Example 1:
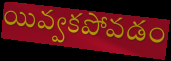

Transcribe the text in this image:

యివ్వకపోవడం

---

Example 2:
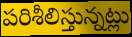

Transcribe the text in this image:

పరిశీలిస్తున్నట్లు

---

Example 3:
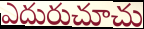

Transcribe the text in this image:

ఎదురుచూచు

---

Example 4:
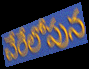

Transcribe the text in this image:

చేరేలోపున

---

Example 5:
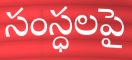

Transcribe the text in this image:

సంస్ధలపై